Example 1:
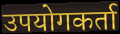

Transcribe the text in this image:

उपयोगकर्ता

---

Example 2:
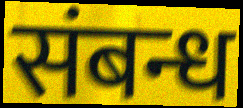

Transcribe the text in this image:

संबन्ध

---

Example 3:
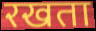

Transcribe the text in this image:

रखता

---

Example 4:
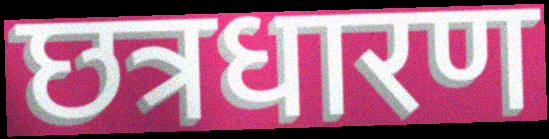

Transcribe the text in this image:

छत्रधारण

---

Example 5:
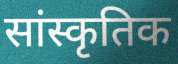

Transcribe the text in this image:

सांस्कृतिक